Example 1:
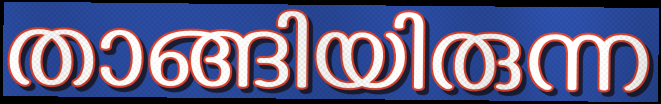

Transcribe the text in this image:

താങ്ങിയിരുന്ന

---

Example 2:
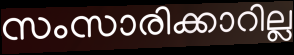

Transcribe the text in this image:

സംസാരിക്കാറില്ല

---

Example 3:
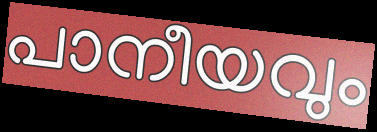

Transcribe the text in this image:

പാനീയവും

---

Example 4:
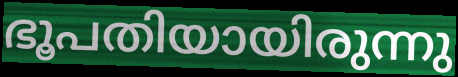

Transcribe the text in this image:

ഭൂപതിയായിരുന്നു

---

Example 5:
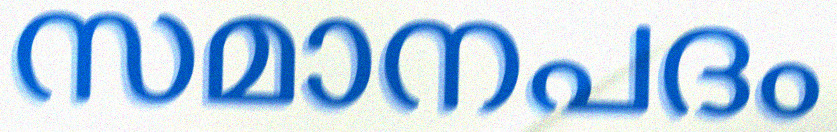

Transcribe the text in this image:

സമാനപദം